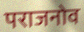
पराजनोव